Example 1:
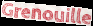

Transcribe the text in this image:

Grenouille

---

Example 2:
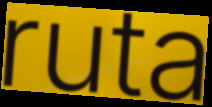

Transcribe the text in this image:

ruta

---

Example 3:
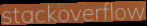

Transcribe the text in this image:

stackoverflow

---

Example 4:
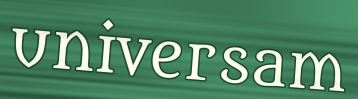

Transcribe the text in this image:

universam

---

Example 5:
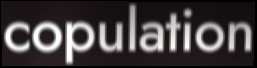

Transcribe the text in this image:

copulation